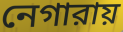
নেগারায়